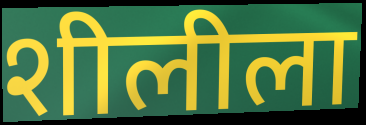
शीलीला